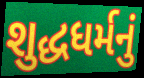
શુદ્ધધર્મનું